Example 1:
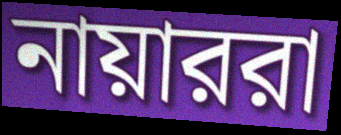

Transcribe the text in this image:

নায়াররা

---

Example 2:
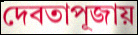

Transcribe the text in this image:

দেবতাপূজায়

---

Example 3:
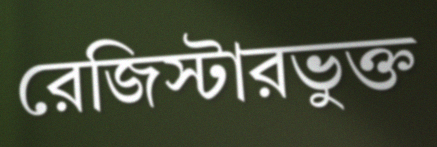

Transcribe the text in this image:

রেজিস্টারভুক্ত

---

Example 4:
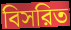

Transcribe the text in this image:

বিসরিত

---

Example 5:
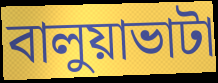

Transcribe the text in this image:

বালুয়াভাটা